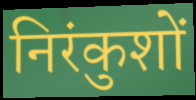
निरंकुशों